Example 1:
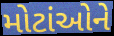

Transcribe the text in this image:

મોટાંઓને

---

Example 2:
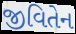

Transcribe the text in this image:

જીવિતેન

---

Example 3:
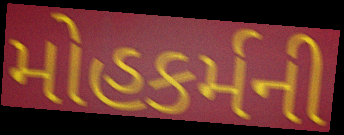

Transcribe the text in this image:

મોહકર્મની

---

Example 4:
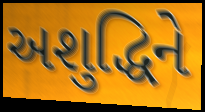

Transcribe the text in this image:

અશુદ્ધિને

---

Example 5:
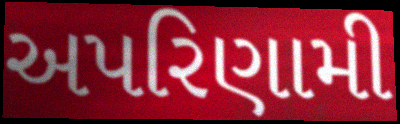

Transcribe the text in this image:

અપરિણામી